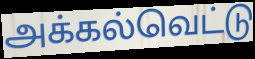
அக்கல்வெட்டு